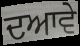
ਦਆਵੇ